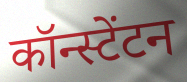
कॉन्स्टेंटन